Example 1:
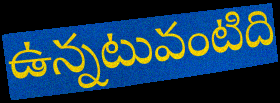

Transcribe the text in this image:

ఉన్నటువంటిది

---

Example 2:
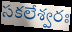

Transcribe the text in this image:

సకలేశ్వరః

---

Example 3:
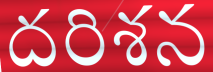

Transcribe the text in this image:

దరిశన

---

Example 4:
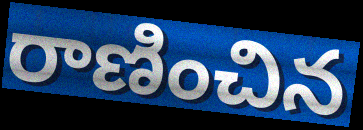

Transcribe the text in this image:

రాణించిన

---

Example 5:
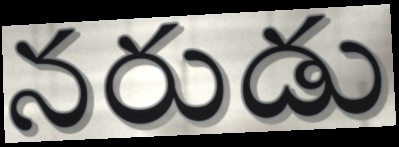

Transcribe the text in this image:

నరుడు